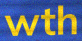
wth